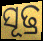
ସୂଢ୍ର